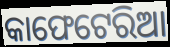
କାଫେଟେରିଆ